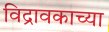
विद्रावकाच्या